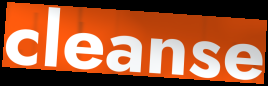
cleanse